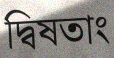
দ্বিষতাং